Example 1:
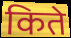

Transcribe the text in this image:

किते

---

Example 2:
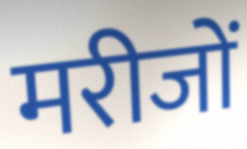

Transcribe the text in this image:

मरीजों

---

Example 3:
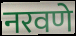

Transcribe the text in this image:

नरवणे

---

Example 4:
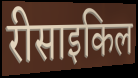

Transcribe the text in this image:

रीसाइकिल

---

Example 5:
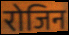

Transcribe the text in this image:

रोजिन